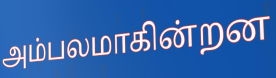
அம்பலமாகின்றன